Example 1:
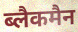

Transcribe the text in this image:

ब्लैकमैन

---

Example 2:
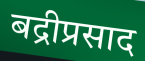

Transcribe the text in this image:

बद्रीप्रसाद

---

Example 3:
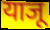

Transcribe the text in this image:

याजू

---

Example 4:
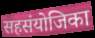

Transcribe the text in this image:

सहसंयोजिका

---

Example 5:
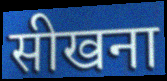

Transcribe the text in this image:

सीखना